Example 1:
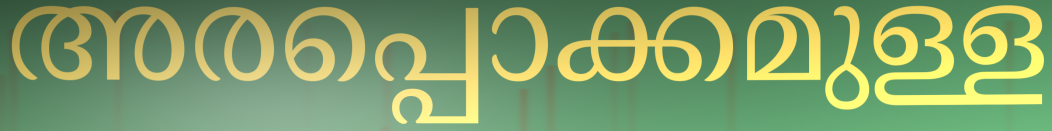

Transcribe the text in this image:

അരപ്പൊക്കമുള്ള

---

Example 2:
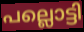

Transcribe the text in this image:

പല്ലൊട്ടി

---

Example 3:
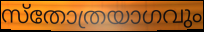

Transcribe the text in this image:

സ്തോത്രയാഗവും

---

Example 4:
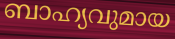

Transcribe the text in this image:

ബാഹ്യവുമായ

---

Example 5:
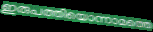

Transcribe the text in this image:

ഇരുപത്തിയൊന്നാമത്തെ